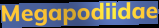
Megapodiidae